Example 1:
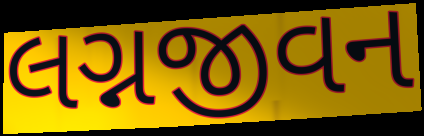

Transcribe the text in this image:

લગ્નજીવન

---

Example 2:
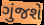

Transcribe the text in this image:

ગુંજશે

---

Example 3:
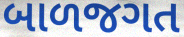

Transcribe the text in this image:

બાળજગત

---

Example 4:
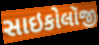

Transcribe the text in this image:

સાઇકોલૉજી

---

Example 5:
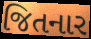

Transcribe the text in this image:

જિતનાર